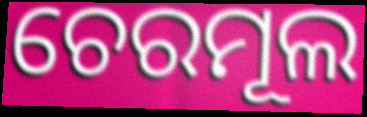
ଚେରମୂଲ